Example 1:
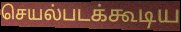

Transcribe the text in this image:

செயல்படக்கூடிய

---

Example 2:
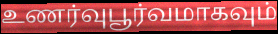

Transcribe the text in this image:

உணர்வுபூர்வமாகவும்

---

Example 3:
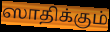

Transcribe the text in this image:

ஸாதிக்கும்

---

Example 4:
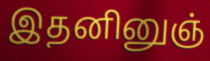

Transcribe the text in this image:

இதனினுஞ்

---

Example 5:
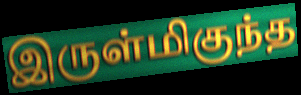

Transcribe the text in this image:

இருள்மிகுந்த